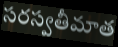
సరస్వతీమాత